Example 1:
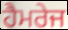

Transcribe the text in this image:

ਹੈਮਰੇਜ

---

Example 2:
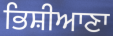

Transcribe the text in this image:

ਭਿਸ਼ੀਆਣਾ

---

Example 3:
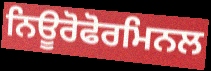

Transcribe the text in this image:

ਨਿਊਰੋਫੋਰਮਿਨਲ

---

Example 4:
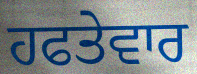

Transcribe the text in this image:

ਹਫਤੇਵਾਰ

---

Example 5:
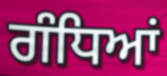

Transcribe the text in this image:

ਗੰਧਿਆਂ